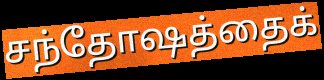
சந்தோஷத்தைக்